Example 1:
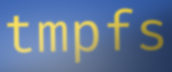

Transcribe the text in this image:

tmpfs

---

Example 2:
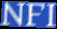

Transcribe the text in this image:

NFI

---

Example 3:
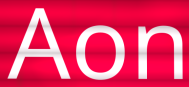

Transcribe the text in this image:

Aon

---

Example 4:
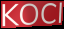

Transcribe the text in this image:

KOCl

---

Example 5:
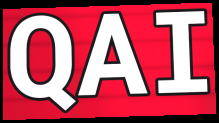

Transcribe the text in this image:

QAI